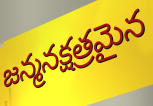
జన్మనక్షత్రమైన